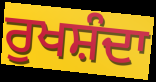
ਰੁਖਸ਼ੰਦਾ